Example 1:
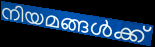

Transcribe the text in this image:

നിയമങ്ങൾക്ക്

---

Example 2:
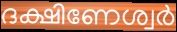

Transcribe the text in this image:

ദക്ഷിണേശ്വർ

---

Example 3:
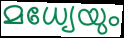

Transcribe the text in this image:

മധ്യേയും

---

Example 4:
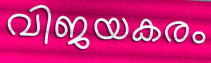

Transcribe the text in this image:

വിജയകരം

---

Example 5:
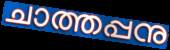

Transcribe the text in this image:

ചാത്തപ്പനു